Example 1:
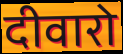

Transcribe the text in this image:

दीवारो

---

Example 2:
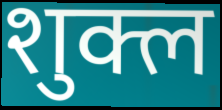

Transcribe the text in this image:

शुक्ल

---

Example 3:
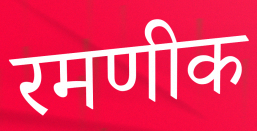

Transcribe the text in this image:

रमणीक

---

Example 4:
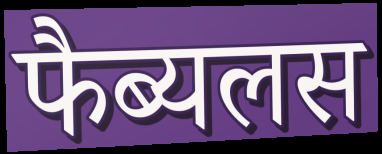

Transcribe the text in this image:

फैब्यलस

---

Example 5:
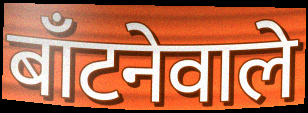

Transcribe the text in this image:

बाँटनेवाले